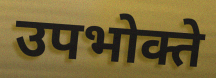
उपभोक्ते